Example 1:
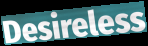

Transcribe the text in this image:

Desireless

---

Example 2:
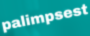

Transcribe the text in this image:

palimpsest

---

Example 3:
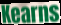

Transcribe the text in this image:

Kearns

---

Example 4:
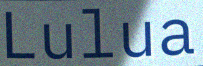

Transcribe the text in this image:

Lulua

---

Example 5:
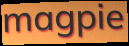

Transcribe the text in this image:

magpie